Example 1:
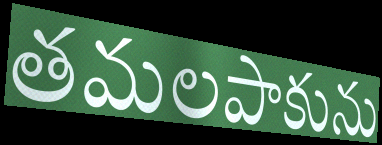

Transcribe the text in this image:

తమలపాకును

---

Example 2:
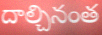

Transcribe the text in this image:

దాల్చినంత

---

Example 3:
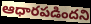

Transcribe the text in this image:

ఆధారపడిందని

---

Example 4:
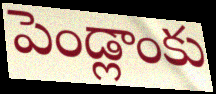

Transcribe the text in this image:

పెండ్లాంకు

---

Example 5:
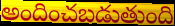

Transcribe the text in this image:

అందించబడుతుంది